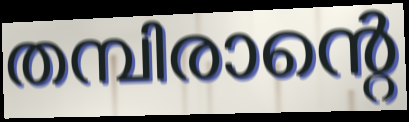
തമ്പിരാന്റെ